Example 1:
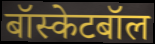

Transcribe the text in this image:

बॉस्केटबॉल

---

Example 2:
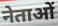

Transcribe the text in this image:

नेताओं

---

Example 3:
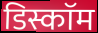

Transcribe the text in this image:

डिस्कॉम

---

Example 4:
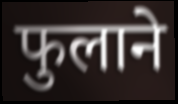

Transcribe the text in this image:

फुलाने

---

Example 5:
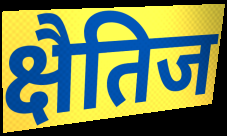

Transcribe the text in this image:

क्षैतिज